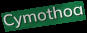
Cymothoa